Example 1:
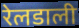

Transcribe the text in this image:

रेलडाली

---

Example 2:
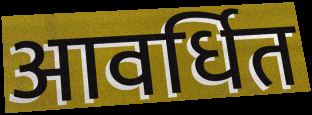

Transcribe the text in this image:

आवर्धित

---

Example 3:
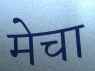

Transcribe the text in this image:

मेचा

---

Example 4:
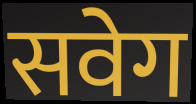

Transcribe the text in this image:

सवेग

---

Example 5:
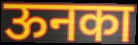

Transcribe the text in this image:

ऊनका